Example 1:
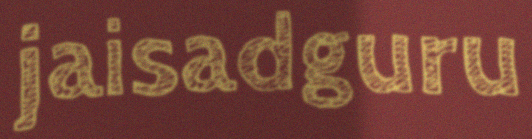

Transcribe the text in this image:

jaisadguru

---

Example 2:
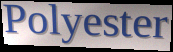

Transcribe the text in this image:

Polyester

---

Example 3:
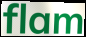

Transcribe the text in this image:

flam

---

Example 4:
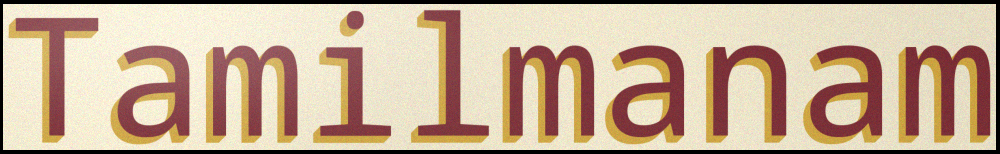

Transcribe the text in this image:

Tamilmanam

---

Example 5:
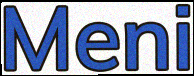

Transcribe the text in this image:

Meni